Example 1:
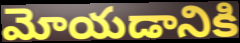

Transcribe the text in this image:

మోయడానికి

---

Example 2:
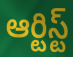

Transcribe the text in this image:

ఆర్టిస్ట్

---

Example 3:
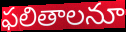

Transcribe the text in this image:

ఫలితాలనూ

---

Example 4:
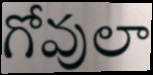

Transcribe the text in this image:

గోవులా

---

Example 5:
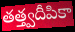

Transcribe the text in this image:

తత్త్వదీపికా